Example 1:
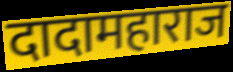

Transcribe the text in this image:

दादामहाराज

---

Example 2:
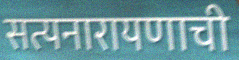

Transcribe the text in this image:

सत्यनारायणाची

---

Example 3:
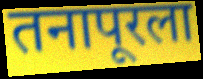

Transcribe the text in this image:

तनापूरला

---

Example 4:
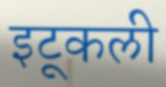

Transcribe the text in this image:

इटूकली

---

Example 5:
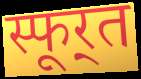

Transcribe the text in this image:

स्फूर्त